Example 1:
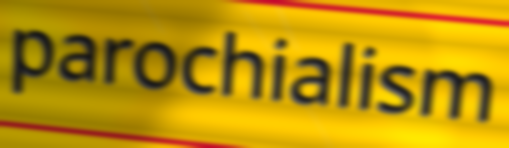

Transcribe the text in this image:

parochialism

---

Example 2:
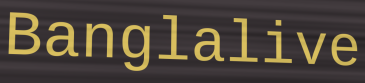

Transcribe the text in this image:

Banglalive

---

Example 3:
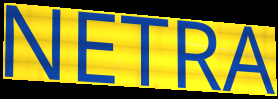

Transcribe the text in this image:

NETRA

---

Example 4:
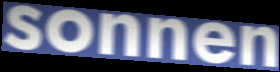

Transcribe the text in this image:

sonnen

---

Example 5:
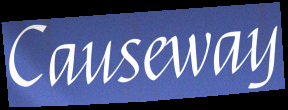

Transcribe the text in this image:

Causeway